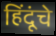
हिंदूंचे